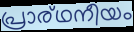
പ്രാര്ഥനീയം